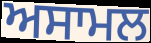
ਅਸਾਮਲ